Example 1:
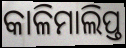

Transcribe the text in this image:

କାଳିମାଲିପ୍ତ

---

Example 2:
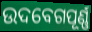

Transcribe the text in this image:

ଉଦବେଗପୂର୍ଣ୍ଣ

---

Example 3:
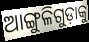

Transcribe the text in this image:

ଆଙ୍ଗୁଳିଗୁଡ଼ାକୁ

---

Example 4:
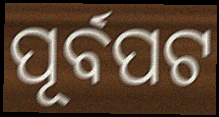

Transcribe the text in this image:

ପୂର୍ବପଟ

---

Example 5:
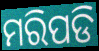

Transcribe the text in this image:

ମରିପଡି